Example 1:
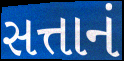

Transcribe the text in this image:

સત્તાનં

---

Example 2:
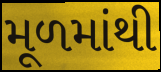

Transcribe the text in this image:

મૂળમાંથી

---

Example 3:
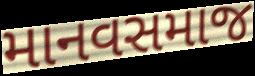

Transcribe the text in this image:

માનવસમાજ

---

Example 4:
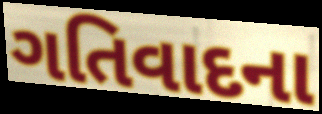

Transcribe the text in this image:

ગતિવાદના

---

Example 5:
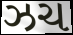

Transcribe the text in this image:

ઝચ